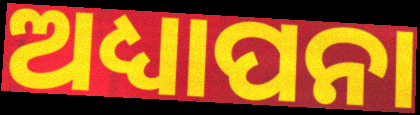
ଅଧ୍ୟାପନା